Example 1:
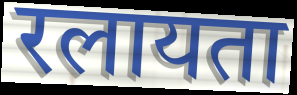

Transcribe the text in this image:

रलायता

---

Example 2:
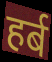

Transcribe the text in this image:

हर्ब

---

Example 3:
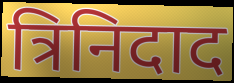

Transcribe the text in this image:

त्रिनिदाद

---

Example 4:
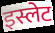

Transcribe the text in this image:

इस्लेट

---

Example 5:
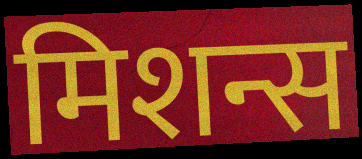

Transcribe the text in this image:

मिशन्स